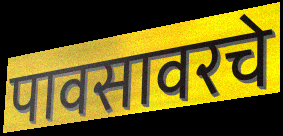
पावसावरचे